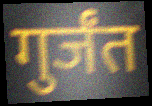
गुर्जंत